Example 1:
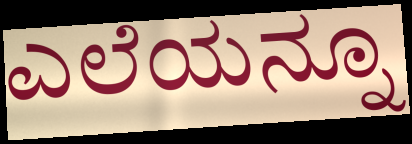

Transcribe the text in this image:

ಎಲೆಯನ್ನೂ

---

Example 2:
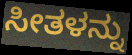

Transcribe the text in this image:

ಸೀತಳನ್ನು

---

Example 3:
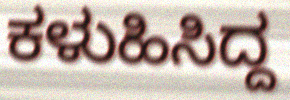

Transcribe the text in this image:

ಕಳುಹಿಸಿದ್ದ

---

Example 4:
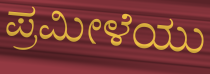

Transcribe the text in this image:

ಪ್ರಮೀಳೆಯು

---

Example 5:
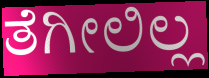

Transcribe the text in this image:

ತೆಗೀಲಿಲ್ಲ